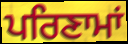
ਪਰਿਣਾਮਾਂ